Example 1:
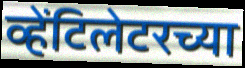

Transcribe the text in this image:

व्हेंटिलेटरच्या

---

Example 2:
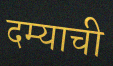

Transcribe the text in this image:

दम्याची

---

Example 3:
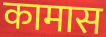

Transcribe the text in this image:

कामास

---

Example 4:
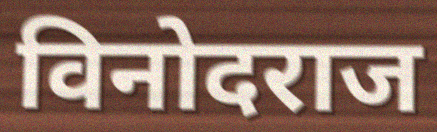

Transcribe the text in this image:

विनोदराज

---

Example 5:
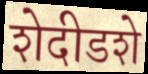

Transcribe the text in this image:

शेदीडशे